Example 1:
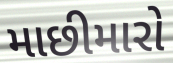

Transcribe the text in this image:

માછીમારો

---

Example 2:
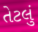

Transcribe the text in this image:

તેટલું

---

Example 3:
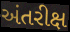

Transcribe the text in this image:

અંતરીક્ષ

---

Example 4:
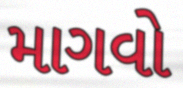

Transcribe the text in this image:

માગવો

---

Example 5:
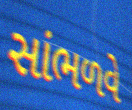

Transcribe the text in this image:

સાંભળવે